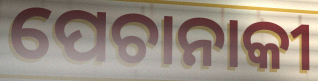
ପେଚାନାକୀ